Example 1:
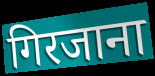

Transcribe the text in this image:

गिरजाना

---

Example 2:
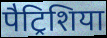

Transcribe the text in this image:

पैट्रिशिया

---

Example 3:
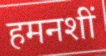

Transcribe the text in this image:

हमनशीं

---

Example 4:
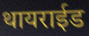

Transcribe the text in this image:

थायराईड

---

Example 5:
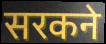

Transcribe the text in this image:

सरकने